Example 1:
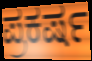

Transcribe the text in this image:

ಪ್ರಕರ್ಷ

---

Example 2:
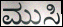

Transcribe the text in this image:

ಮುಸಿ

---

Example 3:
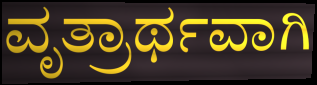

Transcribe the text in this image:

ವೃತ್ರಾರ್ಥವಾಗಿ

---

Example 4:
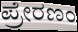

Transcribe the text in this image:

ಪ್ರೇರಣಂ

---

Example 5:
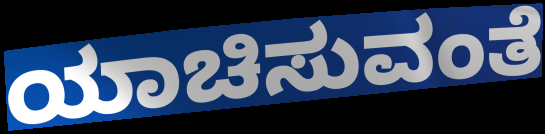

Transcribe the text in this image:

ಯಾಚಿಸುವಂತೆ